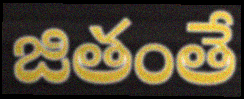
జితంతే